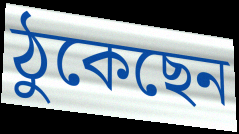
ঠুকেছেন